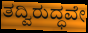
ತದ್ವಿರುದ್ಧವೇ